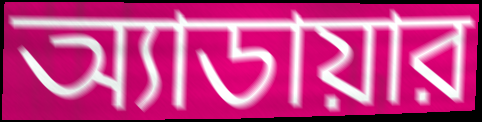
অ্যাডায়ার